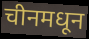
चीनमधून